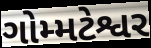
ગોમ્મટેશ્વર